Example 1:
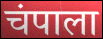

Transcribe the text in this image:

चंपाला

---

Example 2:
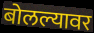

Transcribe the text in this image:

बोलल्यावर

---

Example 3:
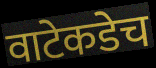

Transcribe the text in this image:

वाटेकडेच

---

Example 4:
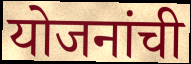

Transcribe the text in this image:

योजनांची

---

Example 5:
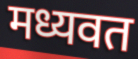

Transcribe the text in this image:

मध्यवत